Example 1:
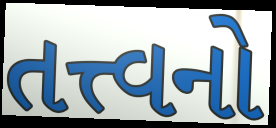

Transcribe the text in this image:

તત્ત્વનો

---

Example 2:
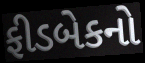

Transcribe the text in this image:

ફીડબેકનો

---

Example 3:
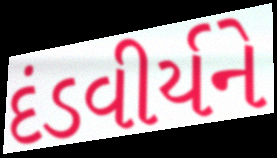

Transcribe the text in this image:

દંડવીર્યને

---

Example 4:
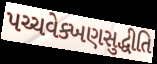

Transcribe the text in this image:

પચ્ચવેક્ખણસુદ્ધીતિ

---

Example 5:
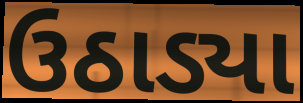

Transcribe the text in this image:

ઉઠાડ્યા